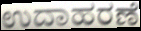
ಉದಾಹರಣೆ